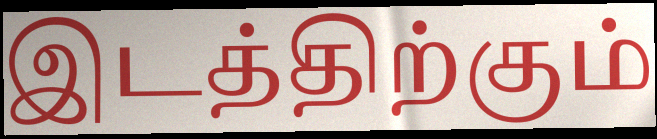
இடத்திற்கும்